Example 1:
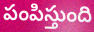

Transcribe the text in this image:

పంపిస్తుంది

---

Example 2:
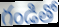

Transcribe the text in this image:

గండితో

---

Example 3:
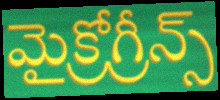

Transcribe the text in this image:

మైక్రోగ్రీన్స్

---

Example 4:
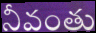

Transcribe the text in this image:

నీవంతు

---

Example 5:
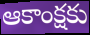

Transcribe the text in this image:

ఆకాంక్షకు